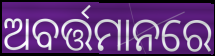
ଅବର୍ତ୍ତମାନରେ